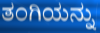
ತಂಗಿಯನ್ನು